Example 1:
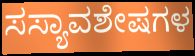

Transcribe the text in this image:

ಸಸ್ಯಾವಶೇಷಗಳ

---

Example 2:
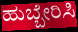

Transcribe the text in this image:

ಹುಬ್ಬೇರಿಸಿ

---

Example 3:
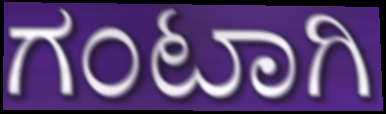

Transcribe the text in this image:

ಗಂಟಾಗಿ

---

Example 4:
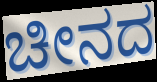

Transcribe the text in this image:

ಚೀನದ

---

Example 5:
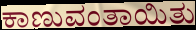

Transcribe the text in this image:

ಕಾಣುವಂತಾಯಿತು